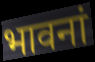
भावनां